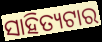
ସାହିତ୍ୟଟାର